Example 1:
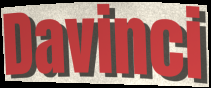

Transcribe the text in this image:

Davinci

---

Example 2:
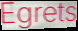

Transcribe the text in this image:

Egrets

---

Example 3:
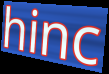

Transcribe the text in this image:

hinc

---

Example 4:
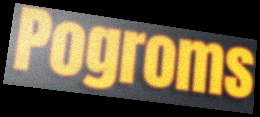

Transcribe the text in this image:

Pogroms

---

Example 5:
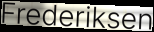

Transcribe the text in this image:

Frederiksen